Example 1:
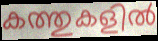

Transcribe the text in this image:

കത്തുകളിൽ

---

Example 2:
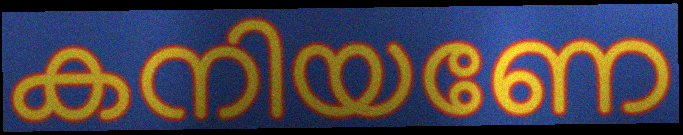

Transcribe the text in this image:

കനിയണേ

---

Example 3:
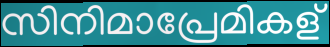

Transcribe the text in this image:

സിനിമാപ്രേമികള്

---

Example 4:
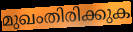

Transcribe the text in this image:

മുഖംതിരിക്കുക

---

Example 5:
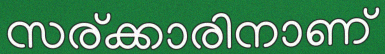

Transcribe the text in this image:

സര്ക്കാരിനാണ്